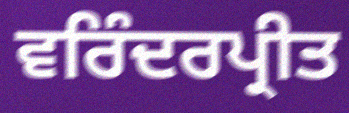
ਵਰਿੰਦਰਪ੍ਰੀਤ